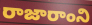
రాజారాంని